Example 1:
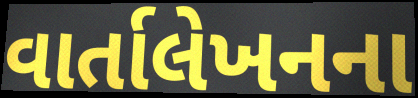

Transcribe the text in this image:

વાર્તાલેખનના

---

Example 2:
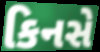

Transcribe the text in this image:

કિનસે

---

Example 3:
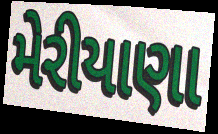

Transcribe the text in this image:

મેરીયાણા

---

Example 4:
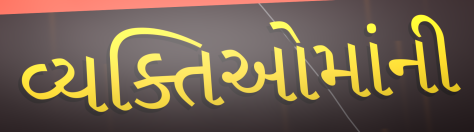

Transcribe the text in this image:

વ્યક્તિઓમાંની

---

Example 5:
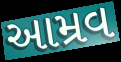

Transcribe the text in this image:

આમ્રવ